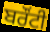
ਬਰੌਂਟੀ